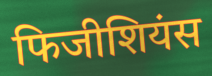
फिजीशियंस